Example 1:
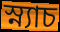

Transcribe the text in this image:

স্ন্যাচ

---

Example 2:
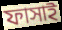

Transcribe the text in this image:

ফাসাই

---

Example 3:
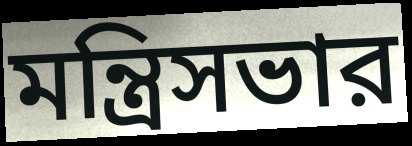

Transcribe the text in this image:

মন্ত্রিসভার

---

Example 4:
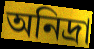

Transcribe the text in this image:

অনিদ্রা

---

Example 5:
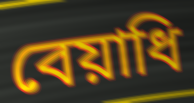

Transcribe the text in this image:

বেয়াধি